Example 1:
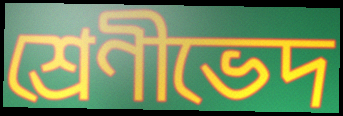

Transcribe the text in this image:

শ্রেণীভেদ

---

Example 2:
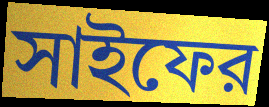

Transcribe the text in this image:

সাইফের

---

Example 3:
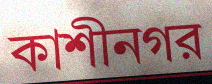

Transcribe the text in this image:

কাশীনগর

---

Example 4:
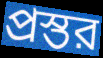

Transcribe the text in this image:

প্রস্তর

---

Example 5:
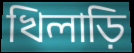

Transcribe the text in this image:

খিলাড়ি